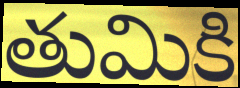
తుమికి